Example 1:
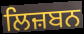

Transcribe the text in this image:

ਲਿਜ਼ਬਨ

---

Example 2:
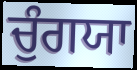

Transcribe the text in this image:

ਚੁੰਗਯਾ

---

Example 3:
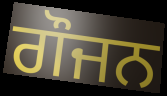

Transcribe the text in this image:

ਗੌਜਨ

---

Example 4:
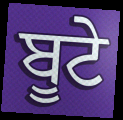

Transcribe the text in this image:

ਬੂਟੇ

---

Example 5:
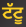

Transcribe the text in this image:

ਟੱਟੂ